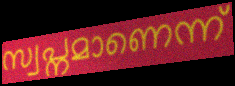
സ്വപ്നമാണെന്ന്